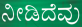
ನೀಡಿದೆವು